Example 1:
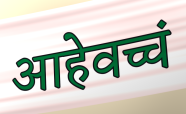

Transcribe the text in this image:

आहेवच्चं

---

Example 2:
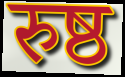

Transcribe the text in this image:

रुष्ठ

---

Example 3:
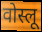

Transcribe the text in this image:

वोस्लू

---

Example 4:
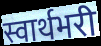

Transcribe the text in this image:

स्वार्थभरी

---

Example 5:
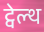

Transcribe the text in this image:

ट्वेल्थ